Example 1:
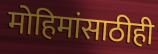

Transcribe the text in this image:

मोहिमांसाठीही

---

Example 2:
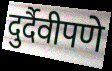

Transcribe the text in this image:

दुर्दैवीपणे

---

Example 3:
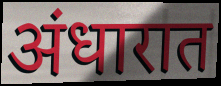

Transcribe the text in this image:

अंधारात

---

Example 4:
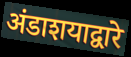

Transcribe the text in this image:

अंडाशयाद्वारे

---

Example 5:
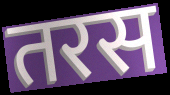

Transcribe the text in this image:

तरस